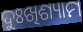
ଦୁଃଖିଶ୍ୟାମ